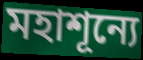
মহাশূন্যে